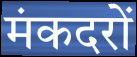
मंकदरों